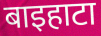
बाइहाटा